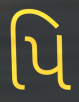
પિ